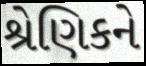
શ્રેણિકને